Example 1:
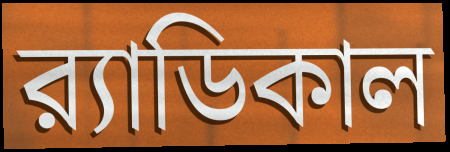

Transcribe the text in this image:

র‍্যাডিকাল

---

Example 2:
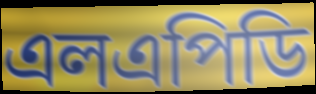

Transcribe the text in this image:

এলএপিডি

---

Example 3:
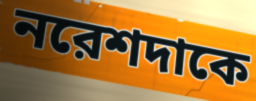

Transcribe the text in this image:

নরেশদাকে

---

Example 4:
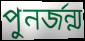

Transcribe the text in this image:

পুনর্জন্ম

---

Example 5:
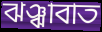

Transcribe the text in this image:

ঝঞ্ঝাবাত